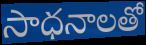
సాధనాలతో